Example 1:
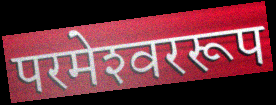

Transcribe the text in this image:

परमेश्वररूप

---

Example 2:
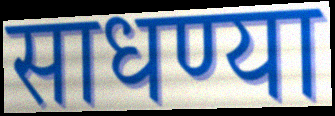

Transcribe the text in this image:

साधण्या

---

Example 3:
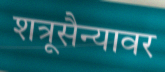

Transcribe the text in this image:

शत्रूसैन्यावर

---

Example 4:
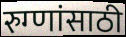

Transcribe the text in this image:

रुग्णांसाठी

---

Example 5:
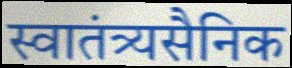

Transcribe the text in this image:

स्वातंत्र्यसैनिक